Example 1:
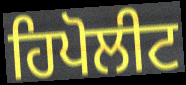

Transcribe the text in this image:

ਹਿਪੋਲੀਟ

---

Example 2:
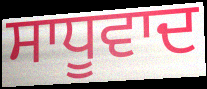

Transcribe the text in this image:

ਸਾਧੂਵਾਦ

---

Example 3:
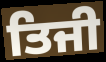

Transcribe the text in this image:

ਤਿਜੀ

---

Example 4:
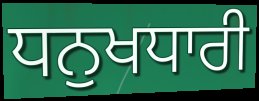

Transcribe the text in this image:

ਧਨੁਖਧਾਰੀ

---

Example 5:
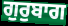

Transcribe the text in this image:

ਗੁਰੁਬਾਗ